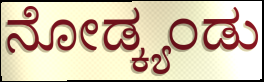
ನೋಡ್ಕ್ಯಂಡು